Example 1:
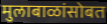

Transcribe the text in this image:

मुलाबाळांसोबत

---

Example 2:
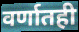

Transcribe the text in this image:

वर्णातही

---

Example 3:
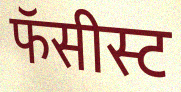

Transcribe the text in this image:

फॅसीस्ट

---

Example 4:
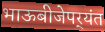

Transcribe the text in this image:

भाऊबीजेपर्यंत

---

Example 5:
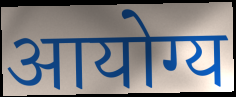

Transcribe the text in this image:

आयोग्य